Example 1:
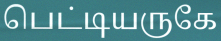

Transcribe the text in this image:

பெட்டியருகே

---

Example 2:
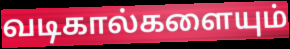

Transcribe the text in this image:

வடிகால்களையும்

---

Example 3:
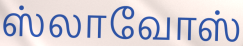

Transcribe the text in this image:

ஸ்லாவோஸ்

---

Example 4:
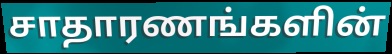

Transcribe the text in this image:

சாதாரணங்களின்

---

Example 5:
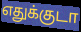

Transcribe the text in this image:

எதுக்குடா